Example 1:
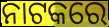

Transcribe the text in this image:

ନାଟକରେ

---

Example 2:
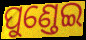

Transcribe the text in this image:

ପୁଣ୍ଡେଇ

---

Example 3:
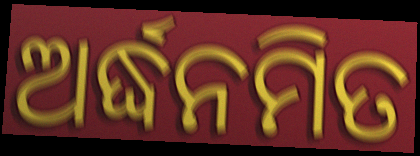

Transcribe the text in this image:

ଅର୍ଦ୍ଧନମିତ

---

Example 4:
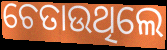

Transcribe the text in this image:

ଚେତାଉଥିଲେ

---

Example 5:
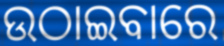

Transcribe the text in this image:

ଉଠାଇବାରେ